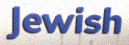
Jewish